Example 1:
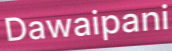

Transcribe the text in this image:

Dawaipani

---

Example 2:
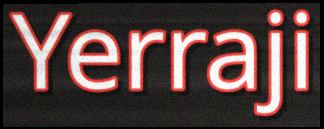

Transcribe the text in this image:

Yerraji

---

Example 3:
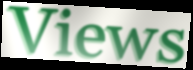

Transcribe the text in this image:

Views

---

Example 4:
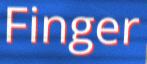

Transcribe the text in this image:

Finger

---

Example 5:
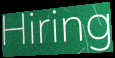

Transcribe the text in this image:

Hiring